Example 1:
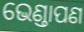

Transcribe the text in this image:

ଭେଣ୍ଡାପଣ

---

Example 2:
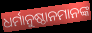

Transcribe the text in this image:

ଧର୍ମାନୁଷ୍ଠାନମାନଙ୍କ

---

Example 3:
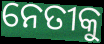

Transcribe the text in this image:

ନେତୀକୁ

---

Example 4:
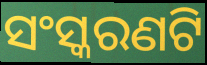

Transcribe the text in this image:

ସଂସ୍କରଣଟି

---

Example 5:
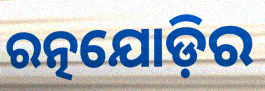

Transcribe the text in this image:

ରତ୍ନଯୋଡ଼ିର